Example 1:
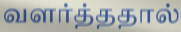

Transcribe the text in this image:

வளர்த்ததால்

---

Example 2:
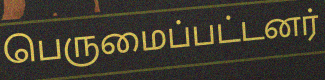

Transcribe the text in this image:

பெருமைப்பட்டனர்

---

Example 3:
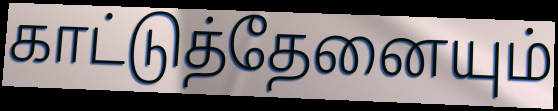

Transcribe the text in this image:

காட்டுத்தேனையும்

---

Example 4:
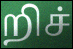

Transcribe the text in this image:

றிச்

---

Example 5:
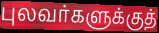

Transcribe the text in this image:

புலவர்களுக்குத்